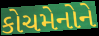
કોચમેનોને